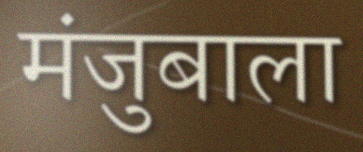
मंजुबाला